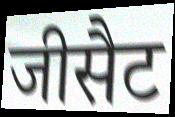
जीसैट